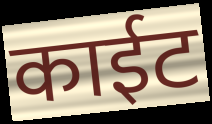
काईट